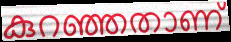
കുറഞ്ഞതാണ്